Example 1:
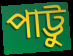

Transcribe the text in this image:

পাট্টু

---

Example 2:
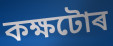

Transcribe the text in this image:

কক্ষটোৰ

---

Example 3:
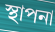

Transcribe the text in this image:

স্থাপনা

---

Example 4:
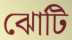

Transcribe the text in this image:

ঝোটি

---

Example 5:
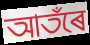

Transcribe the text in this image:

আতঁৰে